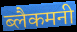
ब्लैकमनी